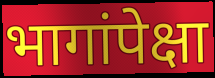
भागांपेक्षा